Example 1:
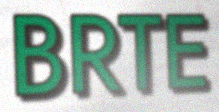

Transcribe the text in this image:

BRTE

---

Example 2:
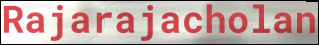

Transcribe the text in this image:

Rajarajacholan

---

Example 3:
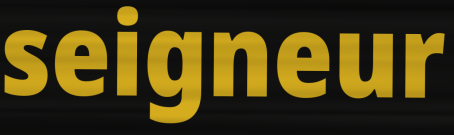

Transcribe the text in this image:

seigneur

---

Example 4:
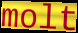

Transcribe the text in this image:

molt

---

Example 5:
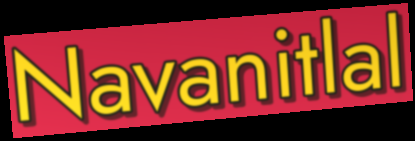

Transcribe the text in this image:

Navanitlal